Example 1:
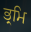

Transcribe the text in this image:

ਭ੍ਰਮਿ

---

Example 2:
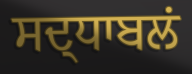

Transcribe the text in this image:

ਸਦ੍ਧਾਬਲਂ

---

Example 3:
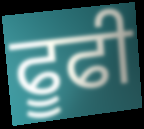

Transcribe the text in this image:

ਫੂਫੀ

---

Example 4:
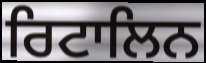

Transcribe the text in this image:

ਰਿਟਾਲਿਨ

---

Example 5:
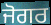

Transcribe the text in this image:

ਜੋਗਰ